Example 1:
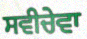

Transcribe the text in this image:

ਸਵੀਚੇਵਾ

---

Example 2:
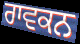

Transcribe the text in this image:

ਰਾਵਕਨ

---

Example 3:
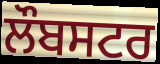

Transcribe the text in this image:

ਲੌਬਸਟਰ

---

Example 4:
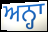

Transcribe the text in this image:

ਅਨ੍ਹਾ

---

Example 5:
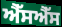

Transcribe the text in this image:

ਐੱਸਐੱਸ